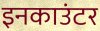
इनकाउंटर